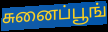
சுனைப்பூங்